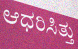
ಆಧರಿಸಿತ್ತು